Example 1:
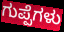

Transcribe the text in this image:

ಗುಪ್ಪೆಗಳು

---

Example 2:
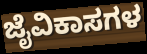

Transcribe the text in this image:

ಜೈವಿಕಾಸಗಳ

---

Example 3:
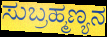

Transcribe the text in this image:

ಸುಬ್ರಹ್ಮಣ್ಯನ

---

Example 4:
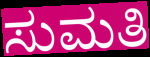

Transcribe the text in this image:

ಸುಮತಿ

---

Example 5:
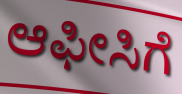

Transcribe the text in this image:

ಆಫೀಸಿಗೆ